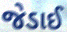
જેડાઈ